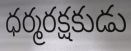
ధర్మరక్షకుడు